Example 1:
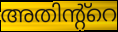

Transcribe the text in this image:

അതിന്റ്റെ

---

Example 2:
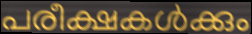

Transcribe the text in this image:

പരീക്ഷകൾക്കും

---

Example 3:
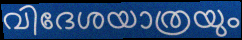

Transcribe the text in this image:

വിദേശയാത്രയും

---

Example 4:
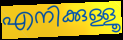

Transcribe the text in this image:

എനിക്കുള്ളൂ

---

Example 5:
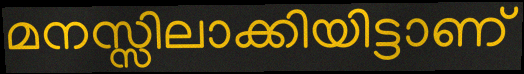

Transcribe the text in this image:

മനസ്സിലാക്കിയിട്ടാണ്